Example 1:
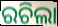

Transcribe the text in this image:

ରଚିଲା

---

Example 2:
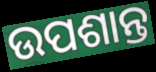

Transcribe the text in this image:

ଉପଶାନ୍ତ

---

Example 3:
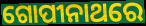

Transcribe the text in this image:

ଗୋପୀନାଥରେ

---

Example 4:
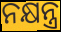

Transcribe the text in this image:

ନକ୍ଷନ୍ତ୍ର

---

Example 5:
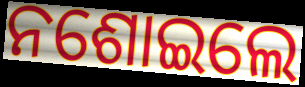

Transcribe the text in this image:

ନଶୋଇଲେ